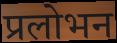
प्रलोभन